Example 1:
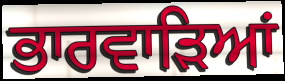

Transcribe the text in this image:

ਭਾਰਵਾੜਿਆਂ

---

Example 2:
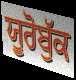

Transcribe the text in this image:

ਯੂਰੋਬੁੱਕ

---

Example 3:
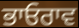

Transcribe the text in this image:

ਭਾਓਰਾਵ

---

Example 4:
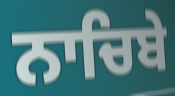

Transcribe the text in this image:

ਨਾਚਿਬੇ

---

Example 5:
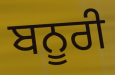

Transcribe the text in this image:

ਬਨੂਰੀ